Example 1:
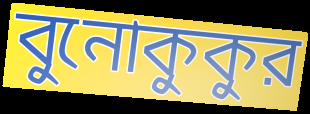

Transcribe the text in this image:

বুনোকুকুর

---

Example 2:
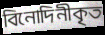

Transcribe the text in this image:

বিনোদিনীকৃত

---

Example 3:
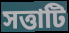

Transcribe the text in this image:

সত্তাটি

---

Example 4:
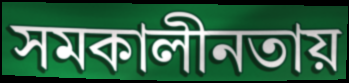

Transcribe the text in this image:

সমকালীনতায়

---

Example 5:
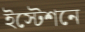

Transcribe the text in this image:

ইস্টেশনে